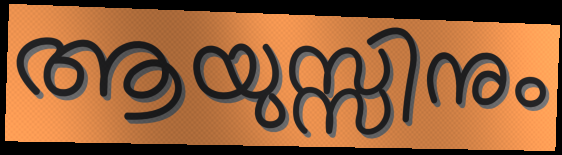
ആയുസ്സിനും